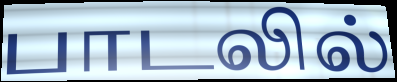
பாடலில்